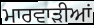
ਮਾਰਵਾੜੀਆਂ